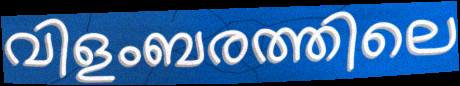
വിളംബരത്തിലെ